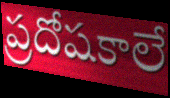
ప్రదోషకాలే